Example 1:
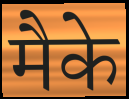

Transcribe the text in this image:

मैके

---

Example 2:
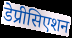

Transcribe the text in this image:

डेप्रीसिएशन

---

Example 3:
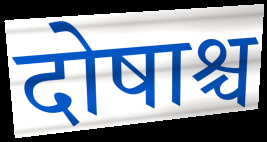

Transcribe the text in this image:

दोषाश्च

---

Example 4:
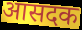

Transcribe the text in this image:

आसदक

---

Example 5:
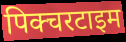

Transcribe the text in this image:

पिक्चरटाइम